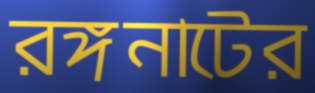
রঙ্গনাটের